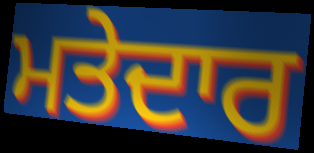
ਮਤੇਦਾਰ